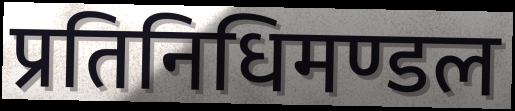
प्रतिनिधिमण्डल